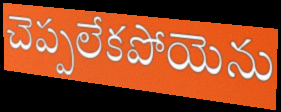
చెప్పలేకపోయెను